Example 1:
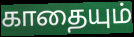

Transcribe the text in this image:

காதையும்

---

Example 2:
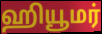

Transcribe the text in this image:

ஹியூமர்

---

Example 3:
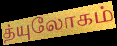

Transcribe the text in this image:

த்யுலோகம்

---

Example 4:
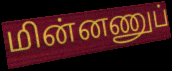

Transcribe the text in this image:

மின்னணுப்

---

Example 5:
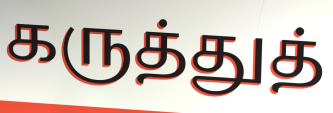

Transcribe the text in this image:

கருத்துத்